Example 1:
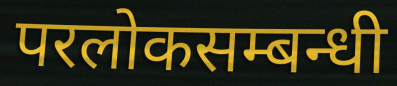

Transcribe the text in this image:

परलोकसम्बन्धी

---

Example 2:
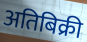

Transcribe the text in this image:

अतिबिक्री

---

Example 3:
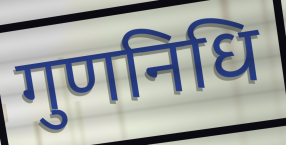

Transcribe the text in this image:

गुणनिधि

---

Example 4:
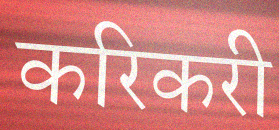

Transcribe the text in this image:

करिकरी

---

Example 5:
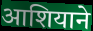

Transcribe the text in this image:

आशियाने